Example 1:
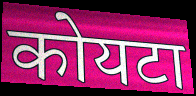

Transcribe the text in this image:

कोयटा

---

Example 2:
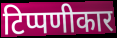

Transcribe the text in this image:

टिप्पणीकार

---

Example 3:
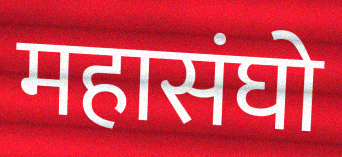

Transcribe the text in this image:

महासंघो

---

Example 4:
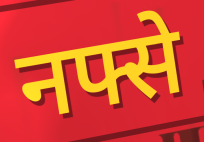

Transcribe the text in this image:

नफ्से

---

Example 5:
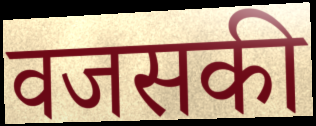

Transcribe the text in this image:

वजसकी